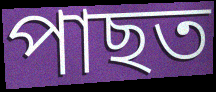
পাছত